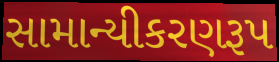
સામાન્યીકરણરૂપ